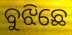
ବୁଝିଛେ